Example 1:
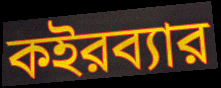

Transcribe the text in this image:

কইরব্যার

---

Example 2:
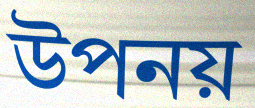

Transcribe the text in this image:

উপনয়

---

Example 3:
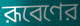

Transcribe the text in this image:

রূবেণের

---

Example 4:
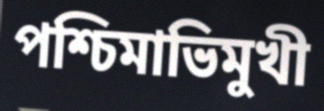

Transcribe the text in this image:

পশ্চিমাভিমুখী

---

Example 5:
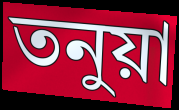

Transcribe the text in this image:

তনুয়া